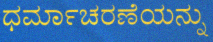
ಧರ್ಮಾಚರಣೆಯನ್ನು